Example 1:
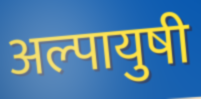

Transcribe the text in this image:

अल्पायुषी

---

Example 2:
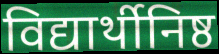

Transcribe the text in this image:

विद्यार्थीनिष्ठ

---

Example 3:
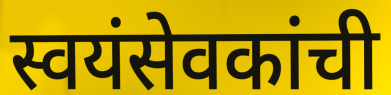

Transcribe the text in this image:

स्वयंसेवकांची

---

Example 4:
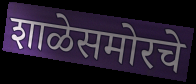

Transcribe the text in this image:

शाळेसमोरचे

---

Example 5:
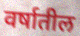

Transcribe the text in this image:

वर्षातील